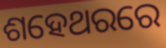
ଶହେଥରରେ